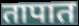
तापात